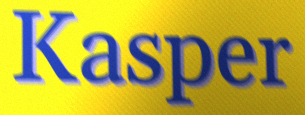
Kasper